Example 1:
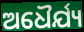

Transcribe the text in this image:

ଅଧୈର୍ଯ୍ୟ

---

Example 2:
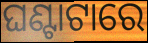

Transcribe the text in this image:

ଘଣ୍ଟାଟାରେ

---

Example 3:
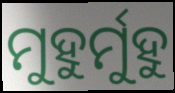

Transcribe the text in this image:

ମୁହୁର୍ମୁହୁ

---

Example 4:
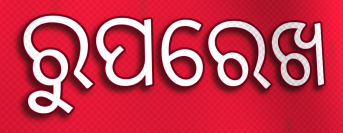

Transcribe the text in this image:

ରୁପରେଖ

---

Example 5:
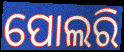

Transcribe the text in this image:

ପୋଲରି